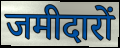
जमीदारों